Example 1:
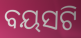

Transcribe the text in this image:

ବୟସଟି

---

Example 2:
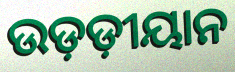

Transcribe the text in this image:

ଉଡ଼ଡ଼ୀୟାନ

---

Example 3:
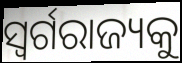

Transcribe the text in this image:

ସ୍ଵର୍ଗରାଜ୍ୟକୁ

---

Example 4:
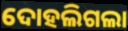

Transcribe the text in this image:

ଦୋହଲିଗଲା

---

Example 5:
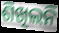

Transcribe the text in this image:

ଶିଖିଲନି